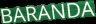
BARANDA